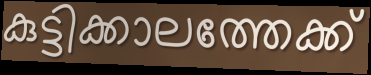
കുട്ടിക്കാലത്തേക്ക്